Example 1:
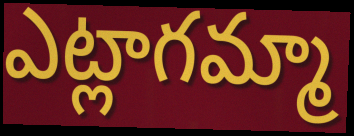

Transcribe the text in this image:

ఎట్లాగమ్మా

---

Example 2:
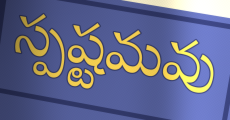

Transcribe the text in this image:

స్పష్టమవు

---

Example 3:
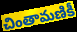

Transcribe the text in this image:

చింతామణికీ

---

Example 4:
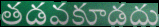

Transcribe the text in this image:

తడవకూడదు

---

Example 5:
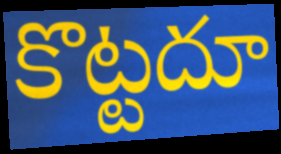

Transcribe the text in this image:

కొట్టదూ